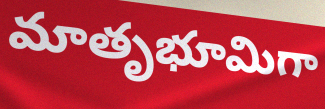
మాతృభూమిగా